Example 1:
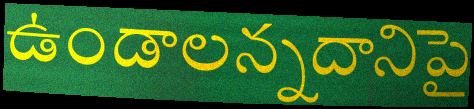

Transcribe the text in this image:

ఉండాలన్నదానిపై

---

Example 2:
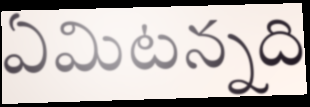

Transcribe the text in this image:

ఏమిటన్నది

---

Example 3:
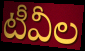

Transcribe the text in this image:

టీవీల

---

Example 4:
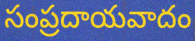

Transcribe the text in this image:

సంప్రదాయవాదం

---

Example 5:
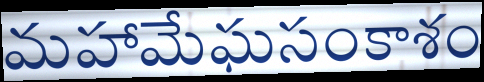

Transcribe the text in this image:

మహామేఘసంకాశం